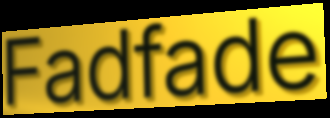
Fadfade